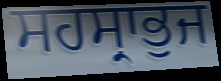
ਸਹਸ੍ਰਾਭੁਜ